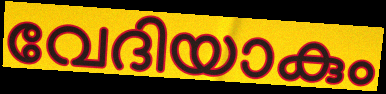
വേദിയാകും